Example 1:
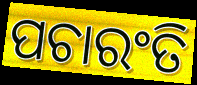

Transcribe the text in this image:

ପଚାରଂତି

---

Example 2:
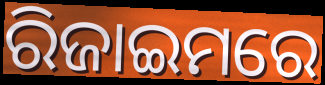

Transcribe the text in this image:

ରିଜାଇମରେ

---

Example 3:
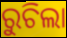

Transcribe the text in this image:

ରୁଚିଲା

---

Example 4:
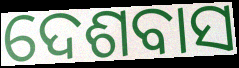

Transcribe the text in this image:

ଦେଶବାସ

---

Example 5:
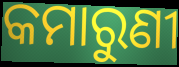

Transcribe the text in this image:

କମାରୁଣୀ